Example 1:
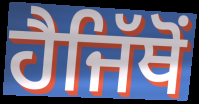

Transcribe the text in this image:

ਹੈਜਿੱਥੋਂ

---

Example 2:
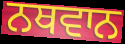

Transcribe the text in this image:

ਨਥਵਾਨ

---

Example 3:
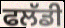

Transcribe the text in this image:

ਫਲੱਡੀ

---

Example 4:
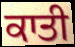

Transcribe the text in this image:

ਕਾਤੀ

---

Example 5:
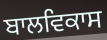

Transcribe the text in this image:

ਬਾਲਵਿਕਾਸ